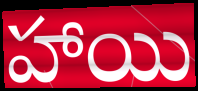
హాయి